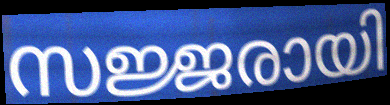
സജ്ജരായി